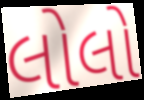
લોલો